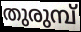
തുരുമ്പ്